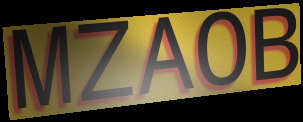
MZAOB